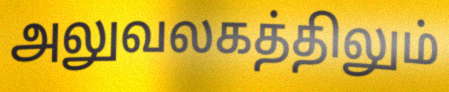
அலுவலகத்திலும்